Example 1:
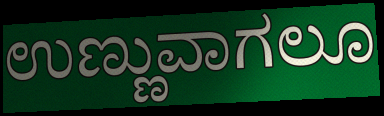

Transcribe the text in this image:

ಉಣ್ಣುವಾಗಲೂ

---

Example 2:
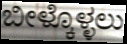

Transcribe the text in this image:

ಬೀಳ್ಕೊಳ್ಳಲು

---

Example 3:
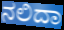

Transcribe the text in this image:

ನಲಿದಾ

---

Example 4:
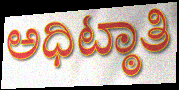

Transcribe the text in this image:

ಅಧಿಟ್ಠಾತಿ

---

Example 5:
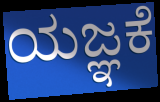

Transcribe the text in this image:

ಯಜ್ಞಕೆ